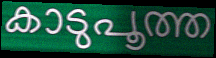
കാടുപൂത്ത